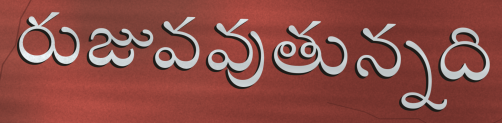
రుజువవుతున్నది